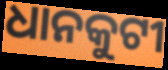
ଧାନକୁଟୀ